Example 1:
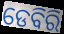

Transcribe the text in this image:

ଡେବିରି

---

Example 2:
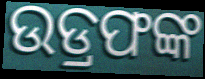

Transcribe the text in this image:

ଉଡ୍ରଫଙ୍କ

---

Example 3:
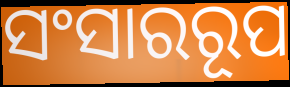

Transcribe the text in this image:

ସଂସାରରୂପ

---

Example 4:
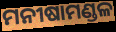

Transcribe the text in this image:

ମନୀଷାମଣ୍ଡଳ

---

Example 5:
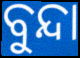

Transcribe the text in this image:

ବୁନ୍ଦା